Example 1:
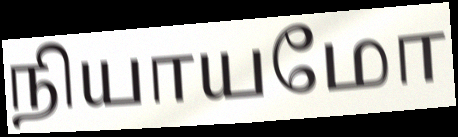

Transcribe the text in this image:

நியாயமோ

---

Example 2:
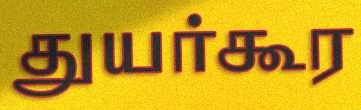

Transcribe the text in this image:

துயர்கூர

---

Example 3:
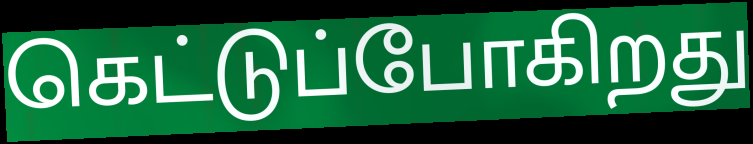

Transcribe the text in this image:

கெட்டுப்போகிறது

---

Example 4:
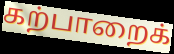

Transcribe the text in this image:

கற்பாறைக்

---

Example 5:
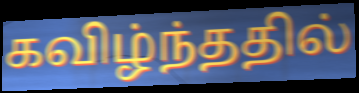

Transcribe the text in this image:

கவிழ்ந்ததில்